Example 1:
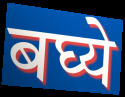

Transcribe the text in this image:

बघ्ये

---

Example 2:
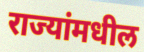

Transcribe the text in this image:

राज्यांमधील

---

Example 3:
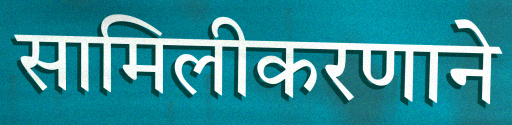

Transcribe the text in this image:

सामिलीकरणाने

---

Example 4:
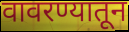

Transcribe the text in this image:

वावरण्यातून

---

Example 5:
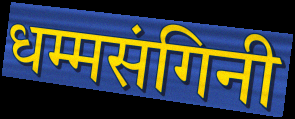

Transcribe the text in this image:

धम्मसंगिनी